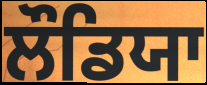
ਲੌਡਿਯਾ